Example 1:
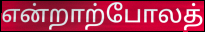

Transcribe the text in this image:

என்றாற்போலத்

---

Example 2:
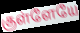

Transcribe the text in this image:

குள்ளேயே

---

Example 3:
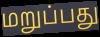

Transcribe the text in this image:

மறுப்பது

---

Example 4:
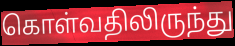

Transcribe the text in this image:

கொள்வதிலிருந்து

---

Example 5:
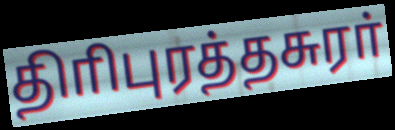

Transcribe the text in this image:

திரிபுரத்தசுரர்